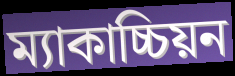
ম্যাকাচ্চিয়ন